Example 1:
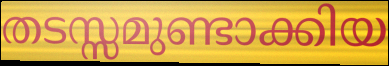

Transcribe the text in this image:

തടസ്സമുണ്ടാക്കിയ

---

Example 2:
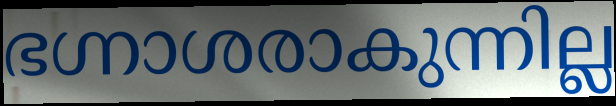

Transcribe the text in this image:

ഭഗ്നാശരാകുന്നില്ല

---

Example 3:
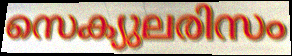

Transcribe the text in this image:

സെക്യുലരിസം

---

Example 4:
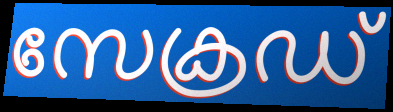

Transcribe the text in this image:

സേക്രഡ്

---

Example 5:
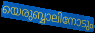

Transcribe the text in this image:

യെരുബ്ബാലിനോടും